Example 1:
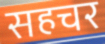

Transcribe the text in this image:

सहचर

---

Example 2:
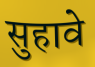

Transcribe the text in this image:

सुहावे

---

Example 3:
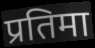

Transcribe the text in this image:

प्रतिमा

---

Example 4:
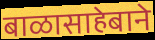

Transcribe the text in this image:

बाळासाहेबाने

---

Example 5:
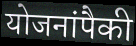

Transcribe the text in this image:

योजनांपैकी